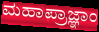
ಮಹಾಪ್ರಾಜ್ಞಾಂ